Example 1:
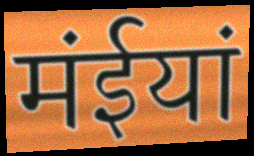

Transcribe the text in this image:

मंईयां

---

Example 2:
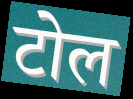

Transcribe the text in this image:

टोल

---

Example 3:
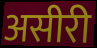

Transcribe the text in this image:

असीरी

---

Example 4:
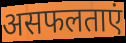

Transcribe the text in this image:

असफलताएं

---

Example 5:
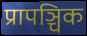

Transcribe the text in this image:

प्रापञ्चिक